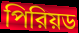
পিরিয়ড